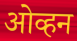
ओव्हन